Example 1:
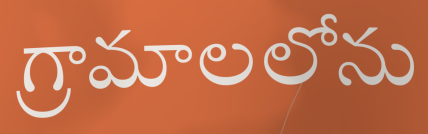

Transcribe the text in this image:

గ్రామాలలోను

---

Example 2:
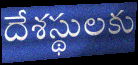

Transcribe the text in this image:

దేశస్థులకు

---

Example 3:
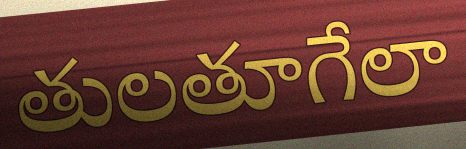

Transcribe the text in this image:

తులతూగేలా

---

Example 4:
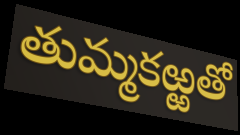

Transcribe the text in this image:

తుమ్మకఱ్ఱతో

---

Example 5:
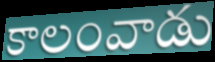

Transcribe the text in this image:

కాలంవాడు